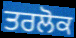
ਤਰਲੋਕ